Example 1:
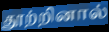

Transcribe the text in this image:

தூற்றினால்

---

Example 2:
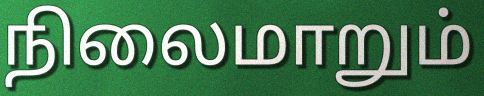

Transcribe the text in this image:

நிலைமாறும்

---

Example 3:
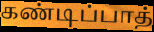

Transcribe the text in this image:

கண்டிப்பாத்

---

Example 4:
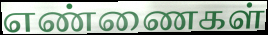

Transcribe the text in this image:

எண்ணைகள்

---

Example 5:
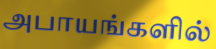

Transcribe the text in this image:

அபாயங்களில்